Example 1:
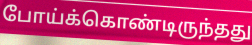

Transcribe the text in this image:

போய்க்கொண்டிருந்தது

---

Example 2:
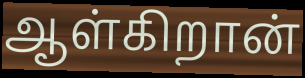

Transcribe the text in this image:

ஆள்கிறான்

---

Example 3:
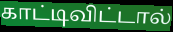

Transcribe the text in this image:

காட்டிவிட்டால்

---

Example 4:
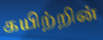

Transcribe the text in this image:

கயிற்றின்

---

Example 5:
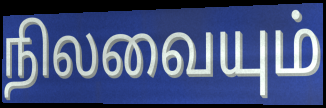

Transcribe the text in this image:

நிலவையும்